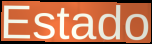
Estado